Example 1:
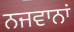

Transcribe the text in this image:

ਨਜਵਾਨਾਂ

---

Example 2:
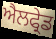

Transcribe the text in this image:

ਐਲਫ੍ਰੇਡ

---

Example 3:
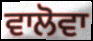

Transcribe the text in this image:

ਵਾਲੋਵਾ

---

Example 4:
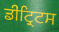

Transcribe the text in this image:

ਡੀਟ੍ਰਿਟਸ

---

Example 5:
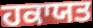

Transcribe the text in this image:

ਹਕਾਯਤ